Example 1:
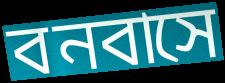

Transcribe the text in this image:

বনবাসে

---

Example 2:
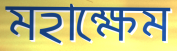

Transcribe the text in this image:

মহাক্ষেম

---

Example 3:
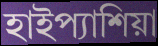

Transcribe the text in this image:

হাইপ্যাশিয়া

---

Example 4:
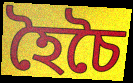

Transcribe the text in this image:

হৈচৈ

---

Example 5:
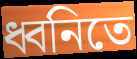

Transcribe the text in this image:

ধ্বনিতে